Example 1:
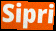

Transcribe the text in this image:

Sipri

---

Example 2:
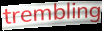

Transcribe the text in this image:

trembling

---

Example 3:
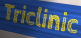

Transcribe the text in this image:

Triclinic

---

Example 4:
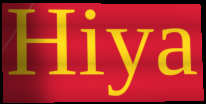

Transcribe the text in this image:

Hiya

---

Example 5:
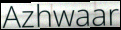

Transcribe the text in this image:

Azhwaar